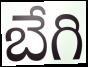
బేగి